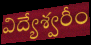
విద్యేశ్వరీం